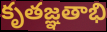
కృతజ్ఞతాభి